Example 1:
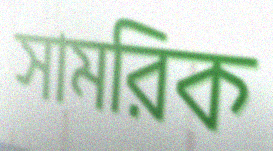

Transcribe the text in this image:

সামরিক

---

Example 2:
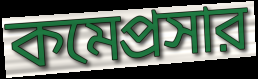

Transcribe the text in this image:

কমেপ্রসার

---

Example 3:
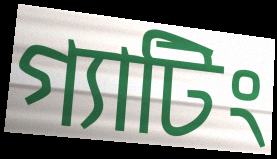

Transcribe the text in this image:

গ্যাটিং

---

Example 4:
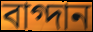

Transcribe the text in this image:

বাগ্দান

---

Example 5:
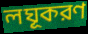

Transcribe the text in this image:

লঘূকরণ